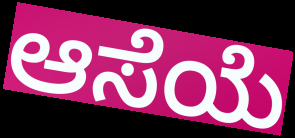
ಆಸೆಯೆ